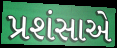
પ્રશંસાએ